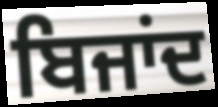
ਬਿਜਾਂਦ